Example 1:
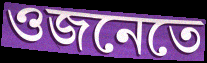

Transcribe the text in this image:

ওজনেতে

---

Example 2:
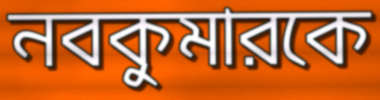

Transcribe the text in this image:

নবকুমারকে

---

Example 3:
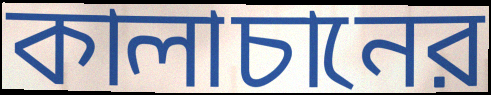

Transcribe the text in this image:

কালাচানের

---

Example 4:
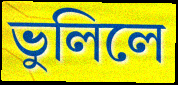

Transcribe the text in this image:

ভুলিলে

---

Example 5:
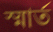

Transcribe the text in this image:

স্মার্ত